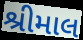
શ્રીમાલ